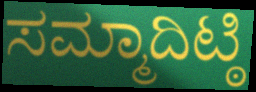
ಸಮ್ಮಾದಿಟ್ಠಿ